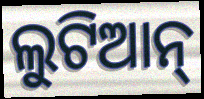
ଲୁଟିଆନ୍